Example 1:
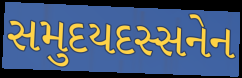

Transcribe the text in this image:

સમુદયદસ્સનેન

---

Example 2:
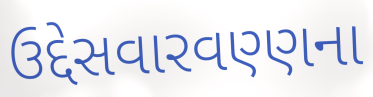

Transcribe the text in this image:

ઉદ્દેસવારવણ્ણના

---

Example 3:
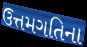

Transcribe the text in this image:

ઉત્તમગતિના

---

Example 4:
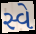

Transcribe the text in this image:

સ્વે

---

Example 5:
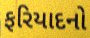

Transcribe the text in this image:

ફરિયાદનો